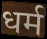
धर्म